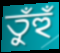
তুঁহুঁ